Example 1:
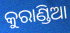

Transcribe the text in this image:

କୁରାଣ୍ଡିଆ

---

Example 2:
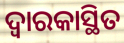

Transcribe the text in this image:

ଦ୍ୱାରକାସ୍ଥିତ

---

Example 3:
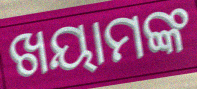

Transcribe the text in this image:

ଖୟାମଙ୍କ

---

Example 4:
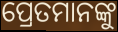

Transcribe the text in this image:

ପ୍ରେତମାନଙ୍କୁ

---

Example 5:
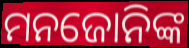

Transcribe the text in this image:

ମନଜୋନିଙ୍କ